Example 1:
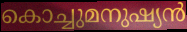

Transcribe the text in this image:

കൊച്ചുമനുഷ്യൻ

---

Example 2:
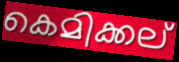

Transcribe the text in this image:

കെമിക്കല്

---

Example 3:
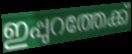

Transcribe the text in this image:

ഇപ്പുറത്തേക്ക്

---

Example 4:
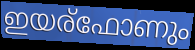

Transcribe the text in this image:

ഇയര്ഫോണും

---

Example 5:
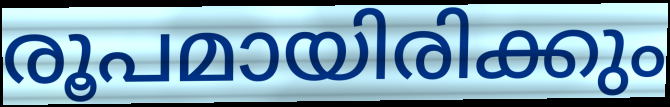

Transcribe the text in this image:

രൂപമായിരിക്കും